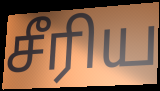
சீரிய